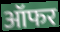
ऑफर